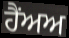
ਹੈਂਅਅ